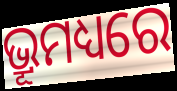
ଭ୍ରୂମଧ୍ୟରେ